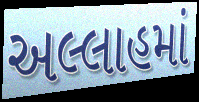
અલ્લાહમાં